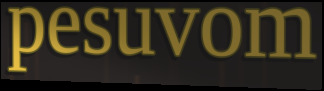
pesuvom